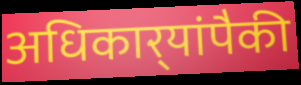
अधिकार्‍यांपैकी